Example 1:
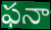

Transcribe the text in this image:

ఫనా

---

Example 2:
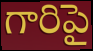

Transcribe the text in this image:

గారిపై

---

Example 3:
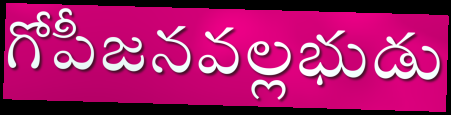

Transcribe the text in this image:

గోపీజనవల్లభుడు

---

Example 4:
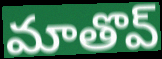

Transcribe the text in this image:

మాతొవ్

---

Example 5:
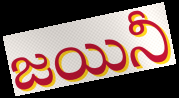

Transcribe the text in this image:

జయినీ